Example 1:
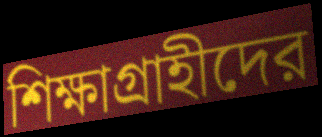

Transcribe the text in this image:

শিক্ষাগ্রাহীদের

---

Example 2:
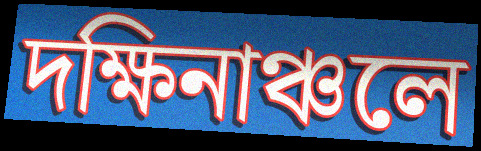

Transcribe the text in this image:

দক্ষিনাঞ্চলে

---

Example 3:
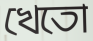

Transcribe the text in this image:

খেতো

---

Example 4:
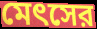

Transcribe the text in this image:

মেৎসের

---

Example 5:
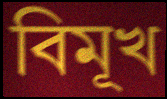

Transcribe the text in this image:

বিমূখ